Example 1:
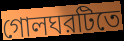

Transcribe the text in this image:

গোলঘরটিতে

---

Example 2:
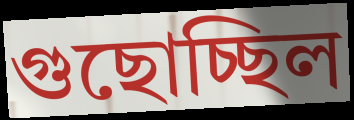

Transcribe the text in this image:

গুছোচ্ছিল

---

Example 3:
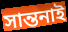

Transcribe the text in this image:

সান্তনাই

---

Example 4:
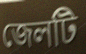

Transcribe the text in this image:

জেলটি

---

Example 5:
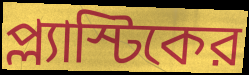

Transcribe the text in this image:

প্ল্যাস্টিকের